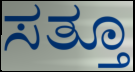
ಸತ್ತೂ